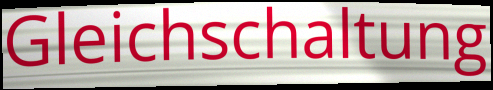
Gleichschaltung